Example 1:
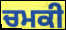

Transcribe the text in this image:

ਚਮਕੀ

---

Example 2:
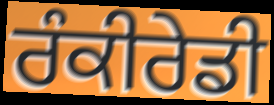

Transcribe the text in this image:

ਰੰਕੀਰੇਡੀ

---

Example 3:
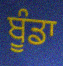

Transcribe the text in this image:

ਬੂੰਡਾ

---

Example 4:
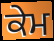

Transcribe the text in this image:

ਕੇਮ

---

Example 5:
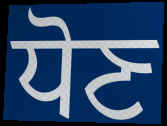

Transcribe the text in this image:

ਧੋਣ